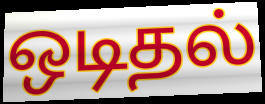
ஒடிதல்